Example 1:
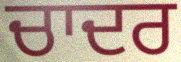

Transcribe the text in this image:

ਚਾਦਰ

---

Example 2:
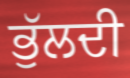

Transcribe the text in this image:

ਭੁੱਲਦੀ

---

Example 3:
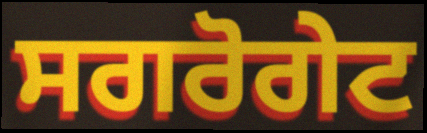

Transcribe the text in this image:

ਸਗਰੋਗੇਟ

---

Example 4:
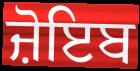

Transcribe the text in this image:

ਜ਼ੋਇਬ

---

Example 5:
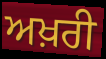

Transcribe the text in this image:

ਅਖ਼ਰੀ